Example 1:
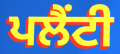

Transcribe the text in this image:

ਪਲੈਂਟੀ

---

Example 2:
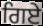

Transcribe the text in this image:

ਗਿਏ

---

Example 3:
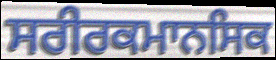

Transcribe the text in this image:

ਸਰੀਰਕਮਾਨਸਿਕ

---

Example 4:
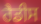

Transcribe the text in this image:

ਰੈਡੀਸ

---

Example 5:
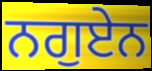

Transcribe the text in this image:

ਨਗੁਏਨ